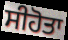
ਸੀਹੋਤਾ